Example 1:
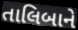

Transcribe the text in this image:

તાલિબાને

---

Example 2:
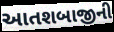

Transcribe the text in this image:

આતશબાજીની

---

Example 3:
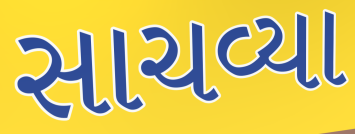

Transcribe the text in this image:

સાચવ્યા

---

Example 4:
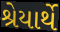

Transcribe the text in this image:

શ્રેયાર્થે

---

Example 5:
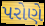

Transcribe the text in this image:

પરોણે